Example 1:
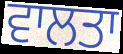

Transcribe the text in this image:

ਵਾਲਤਾ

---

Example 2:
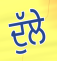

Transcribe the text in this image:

ਦੁੱਲੇ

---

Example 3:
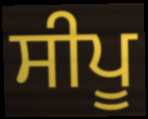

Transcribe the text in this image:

ਸੀਪੂ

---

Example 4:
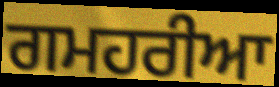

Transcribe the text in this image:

ਗਮਹਰੀਆ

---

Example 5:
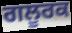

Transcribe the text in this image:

ਗਲੂਰਕ